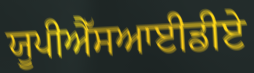
ਯੂਪੀਐੱਸਆਈਡੀਏ